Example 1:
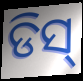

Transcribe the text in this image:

ଡିସ୍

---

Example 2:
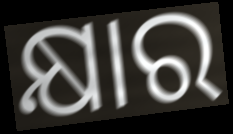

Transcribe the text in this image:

କ୍ଷାର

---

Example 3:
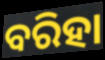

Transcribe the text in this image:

ବରିହା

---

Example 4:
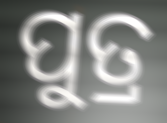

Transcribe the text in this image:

ପୁତ୍ର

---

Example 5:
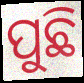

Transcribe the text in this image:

ପୁଛି